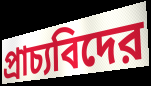
প্রাচ্যবিদের